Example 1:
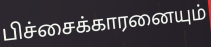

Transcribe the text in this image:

பிச்சைக்காரனையும்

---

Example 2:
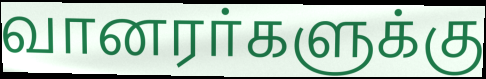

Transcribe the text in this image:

வானரர்களுக்கு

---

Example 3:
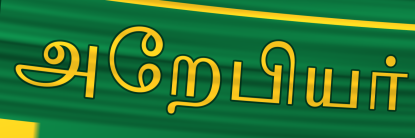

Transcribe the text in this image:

அறேபியர்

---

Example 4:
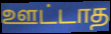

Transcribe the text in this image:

ஊட்டாத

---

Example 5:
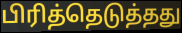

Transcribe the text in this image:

பிரித்தெடுத்தது